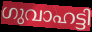
ഗുവാഹട്ടി